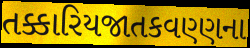
તક્કારિયજાતકવણ્ણના